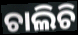
ଚାଲିଚି